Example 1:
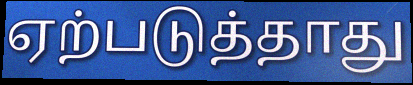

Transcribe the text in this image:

ஏற்படுத்தாது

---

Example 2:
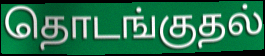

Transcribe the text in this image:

தொடங்குதல்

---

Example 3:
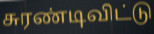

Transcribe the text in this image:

சுரண்டிவிட்டு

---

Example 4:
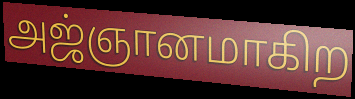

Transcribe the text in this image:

அஜ்ஞானமாகிற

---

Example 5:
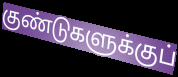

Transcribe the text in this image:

குண்டுகளுக்குப்